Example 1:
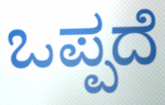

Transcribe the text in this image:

ಒಪ್ಪದೆ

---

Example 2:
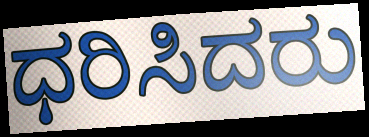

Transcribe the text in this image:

ಧರಿಸಿದರು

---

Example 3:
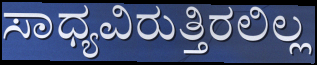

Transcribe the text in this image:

ಸಾಧ್ಯವಿರುತ್ತಿರಲಿಲ್ಲ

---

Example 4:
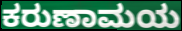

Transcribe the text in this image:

ಕರುಣಾಮಯ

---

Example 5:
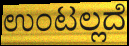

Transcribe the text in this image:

ಉಂಟಲ್ಲದೆ